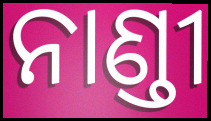
ନାଣ୍ଡୀ